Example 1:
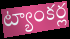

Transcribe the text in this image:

ట్యాంకర్ల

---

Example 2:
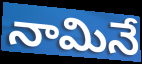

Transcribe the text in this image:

నామినే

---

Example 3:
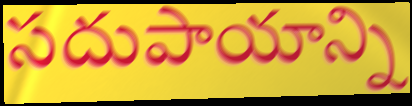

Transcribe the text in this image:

సదుపాయాన్ని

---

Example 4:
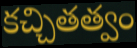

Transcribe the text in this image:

కచ్చితత్వం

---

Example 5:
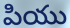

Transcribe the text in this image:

పియు